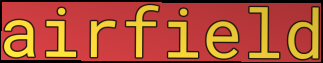
airfield